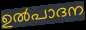
ഉൽപാദന